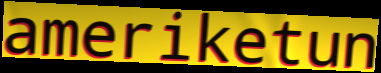
ameriketun